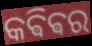
କଵିଵର